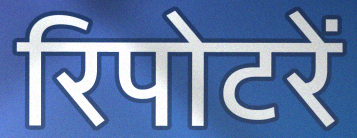
रिपोटरें